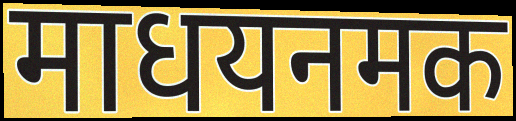
माधयनमक